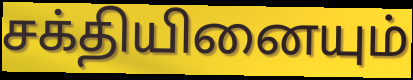
சக்தியினையும்